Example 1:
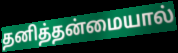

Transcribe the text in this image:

தனித்தன்மையால்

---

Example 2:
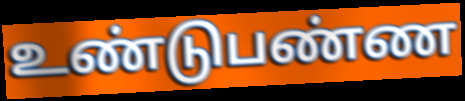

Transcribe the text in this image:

உண்டுபண்ண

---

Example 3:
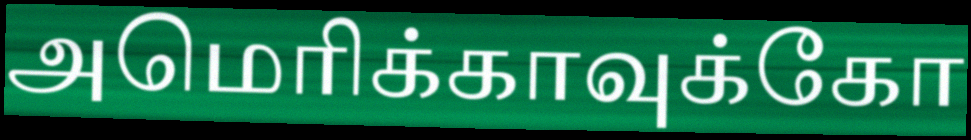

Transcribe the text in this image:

அமெரிக்காவுக்கோ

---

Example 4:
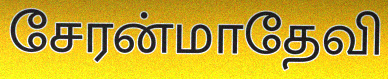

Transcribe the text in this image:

சேரன்மாதேவி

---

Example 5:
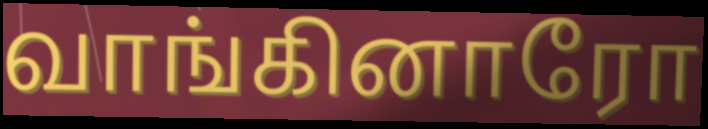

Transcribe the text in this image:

வாங்கினாரோ